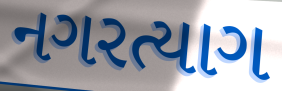
નગરત્યાગ